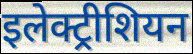
इलेक्ट्रीशियन